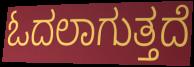
ಓದಲಾಗುತ್ತದೆ